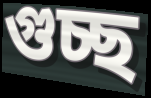
গুচ্ছ